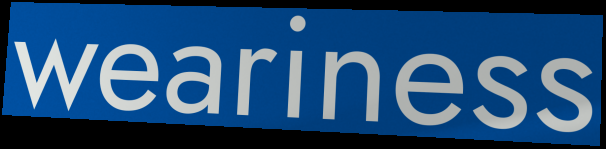
weariness